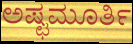
ಅಷ್ಟಮೂರ್ತಿ